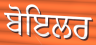
ਬੋਇਲਰ